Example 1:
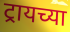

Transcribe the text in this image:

ट्रायच्या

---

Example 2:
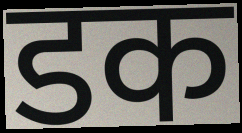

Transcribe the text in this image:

डक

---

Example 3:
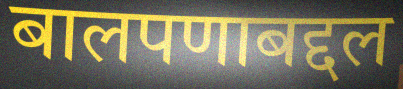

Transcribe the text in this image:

बालपणाबद्दल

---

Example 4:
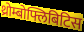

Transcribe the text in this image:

थ्रोम्बोफ्लिबिटिस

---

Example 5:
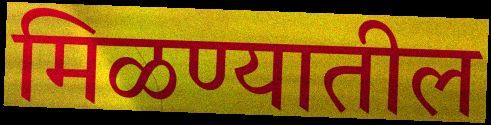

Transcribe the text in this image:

मिळण्यातील